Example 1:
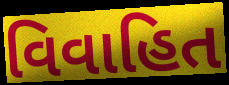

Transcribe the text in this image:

વિવાહિત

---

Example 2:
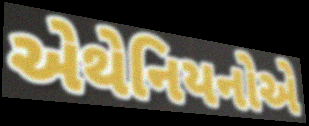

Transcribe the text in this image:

એથેનિયનોએ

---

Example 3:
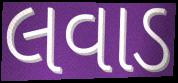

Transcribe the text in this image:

લવાડ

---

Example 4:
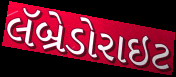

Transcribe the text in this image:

લૅબ્રેડોરાઇટ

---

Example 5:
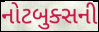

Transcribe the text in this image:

નોટબુક્સની